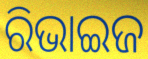
ରିଭାଇଜ